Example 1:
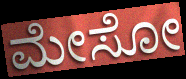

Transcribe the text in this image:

ಮೇಸೋ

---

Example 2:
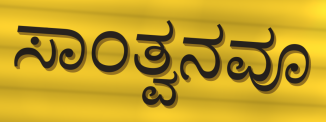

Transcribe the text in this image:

ಸಾಂತ್ವನವೂ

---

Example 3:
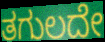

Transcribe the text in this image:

ತಗುಲದೇ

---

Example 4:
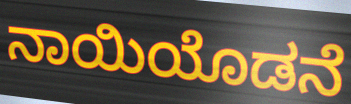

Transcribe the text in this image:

ನಾಯಿಯೊಡನೆ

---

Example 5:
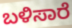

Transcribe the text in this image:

ಬಳಿಸಾರೆ